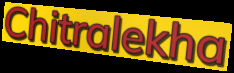
Chitralekha